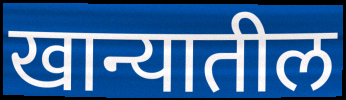
खान्यातील